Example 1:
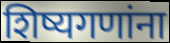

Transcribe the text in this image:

शिष्यगणांना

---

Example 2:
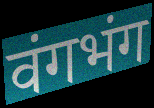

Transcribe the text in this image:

वंगभंग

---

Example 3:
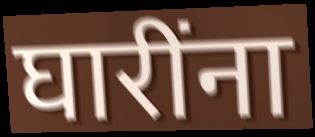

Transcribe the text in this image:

घारींना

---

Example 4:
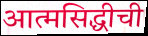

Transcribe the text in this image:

आत्मसिद्धीची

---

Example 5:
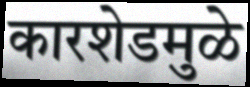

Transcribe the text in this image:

कारशेडमुळे